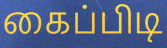
கைப்பிடி